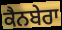
ਕੈਨਬੇਰਾ